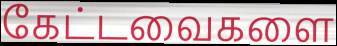
கேட்டவைகளை